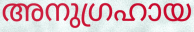
അനുഗ്രഹായ